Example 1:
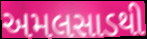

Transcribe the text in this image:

અમલસાડથી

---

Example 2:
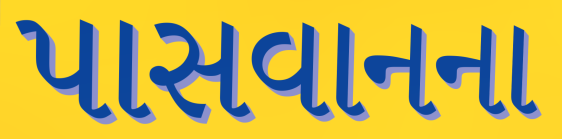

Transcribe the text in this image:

પાસવાનના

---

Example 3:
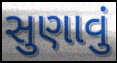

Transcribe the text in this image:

સુણાવું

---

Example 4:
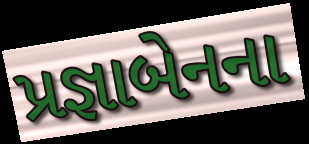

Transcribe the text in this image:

પ્રજ્ઞાબેનના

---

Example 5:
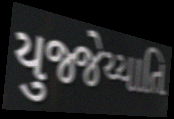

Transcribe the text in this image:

યુજ્જેય્યાતિ